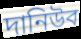
দানিউব